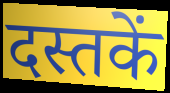
दस्तकें